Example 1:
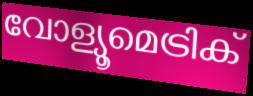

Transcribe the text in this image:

വോള്യൂമെട്രിക്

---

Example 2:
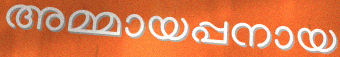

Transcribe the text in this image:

അമ്മായപ്പനായ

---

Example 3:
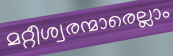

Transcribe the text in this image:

മറ്റീശ്വരന്മാരെല്ലാം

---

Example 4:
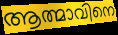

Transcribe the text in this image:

ആത്മാവിനെ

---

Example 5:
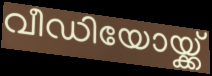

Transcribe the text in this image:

വീഡിയോയ്ക്ക്